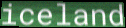
iceland